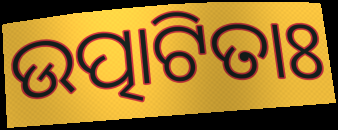
ଉତ୍ପାଟିତାଃ